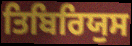
ਤਿਬਿਰਿਯੁਸ